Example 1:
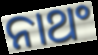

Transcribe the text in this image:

ନାଥଂ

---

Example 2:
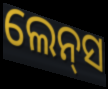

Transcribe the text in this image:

ଲେନ୍‌ସ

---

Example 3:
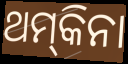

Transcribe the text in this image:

ଥମ୍‍କିନା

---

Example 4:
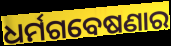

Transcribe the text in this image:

ଧର୍ମଗବେଷଣାର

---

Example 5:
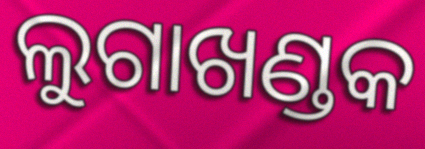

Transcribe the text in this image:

ଲୁଗାଖଣ୍ଡକ